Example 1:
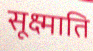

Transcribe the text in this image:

सूक्ष्माति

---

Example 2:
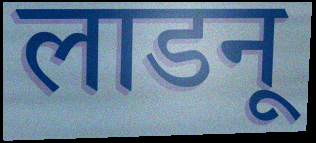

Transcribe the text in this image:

लाडनू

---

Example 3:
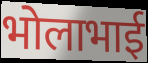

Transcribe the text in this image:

भोलाभाई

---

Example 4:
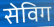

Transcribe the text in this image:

सेविग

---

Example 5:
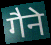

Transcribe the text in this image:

गैने